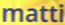
matti